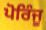
ਪੋਰਿੰਜੂ